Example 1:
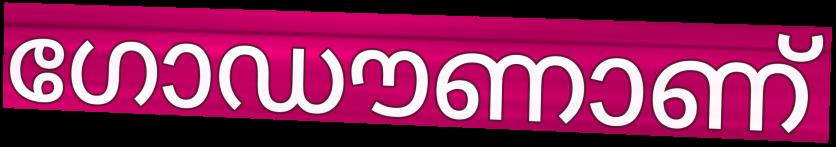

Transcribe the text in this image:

ഗോഡൗണാണ്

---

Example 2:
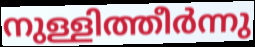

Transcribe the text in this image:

നുള്ളിത്തീർന്നു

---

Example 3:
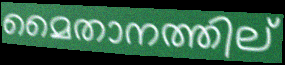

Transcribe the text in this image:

മൈതാനത്തില്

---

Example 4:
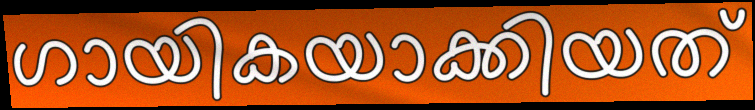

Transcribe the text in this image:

ഗായികയാക്കിയത്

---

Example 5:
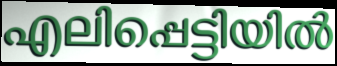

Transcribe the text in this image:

എലിപ്പെട്ടിയിൽ